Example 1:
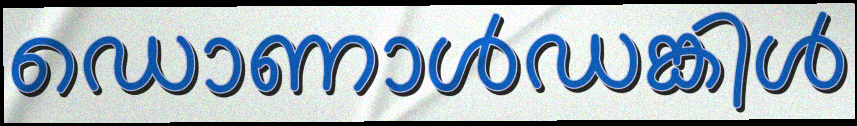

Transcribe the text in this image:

ഡൊണാൾഡങ്കിൾ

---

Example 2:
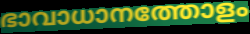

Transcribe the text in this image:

ഭാവാധാനത്തോളം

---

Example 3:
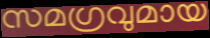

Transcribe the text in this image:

സമഗ്രവുമായ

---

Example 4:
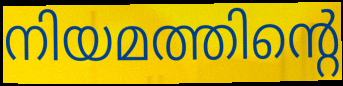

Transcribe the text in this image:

നിയമത്തിന്റെ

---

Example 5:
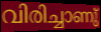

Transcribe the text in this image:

വിരിച്ചാണു്